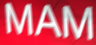
MAM